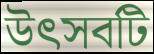
উৎসবটি